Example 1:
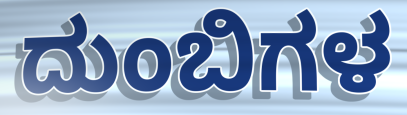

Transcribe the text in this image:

ದುಂಬಿಗಳ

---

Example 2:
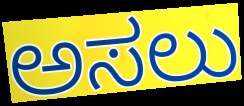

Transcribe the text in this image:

ಅಸಲು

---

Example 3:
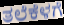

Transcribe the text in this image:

ತಲೆಕೆಳಗೆ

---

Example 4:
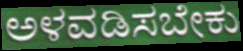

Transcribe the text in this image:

ಅಳವಡಿಸಬೇಕು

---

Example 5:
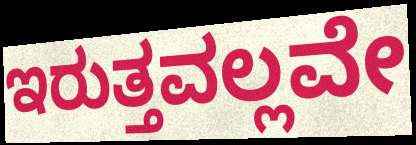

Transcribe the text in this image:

ಇರುತ್ತವಲ್ಲವೇ